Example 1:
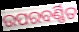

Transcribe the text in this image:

ଉପରବର୍ଣ୍ଣିତ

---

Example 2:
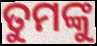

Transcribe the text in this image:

ତୁମଙ୍କୁ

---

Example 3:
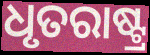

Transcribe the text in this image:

ଧୃତରାଷ୍ଟ୍ର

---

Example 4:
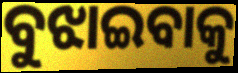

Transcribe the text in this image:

ବୁଝାଇବାକୁ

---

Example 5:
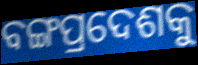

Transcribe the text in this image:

ବଙ୍ଗପ୍ରଦେଶକୁ